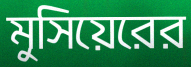
মুসিয়েরের